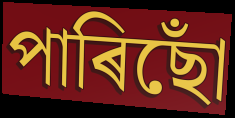
পাৰিছোঁ